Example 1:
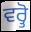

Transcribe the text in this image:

ਵਰ੍ਤੋ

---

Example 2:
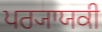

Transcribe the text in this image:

ਪਰ੍ਯਾਯਕੀ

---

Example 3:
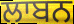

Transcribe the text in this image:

ਲਾਬਨ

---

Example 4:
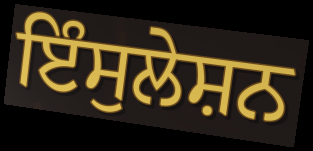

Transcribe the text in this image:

ਇੰਸੁਲੇਸ਼ਨ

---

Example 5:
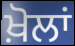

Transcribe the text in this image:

ਖ਼ੋਲਾਂ